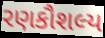
રણકૌશલ્ય